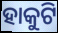
ହାକୁଟି